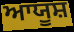
ਆਯੂਸ਼